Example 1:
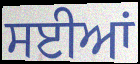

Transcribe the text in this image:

ਸਈਆਂ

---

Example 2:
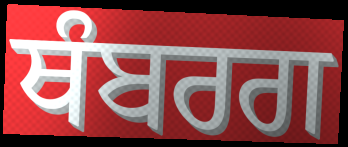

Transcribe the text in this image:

ਥੰਬਰਗ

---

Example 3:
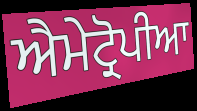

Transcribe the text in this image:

ਐਮੇਟ੍ਰੋਪੀਆ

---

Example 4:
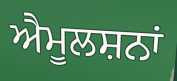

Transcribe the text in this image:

ਐਮੂਲਸ਼ਨਾਂ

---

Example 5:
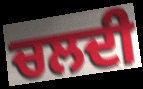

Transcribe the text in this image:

ਚਲਦੀ